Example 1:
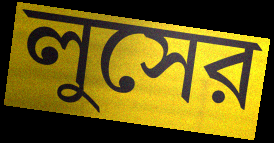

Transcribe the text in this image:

লুসের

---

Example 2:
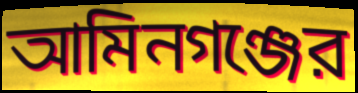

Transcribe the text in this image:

আমিনগঞ্জের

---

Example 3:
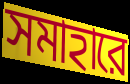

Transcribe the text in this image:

সমাহারে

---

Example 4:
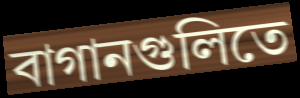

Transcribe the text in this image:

বাগানগুলিতে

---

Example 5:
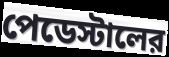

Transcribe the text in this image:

পেডেস্টালের